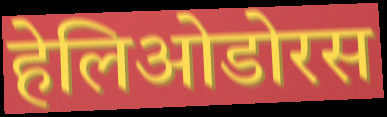
हेलिओडोरस